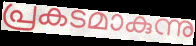
പ്രകടമാകുന്നു